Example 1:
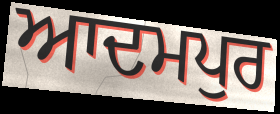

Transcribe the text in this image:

ਆਦਮਪੁਰ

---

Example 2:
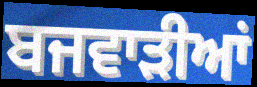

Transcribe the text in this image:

ਬਜਵਾੜੀਆਂ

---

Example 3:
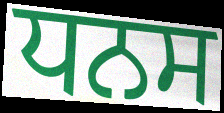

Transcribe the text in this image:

ਧਨਸ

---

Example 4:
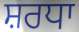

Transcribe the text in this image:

ਸ਼ਰਧਾ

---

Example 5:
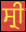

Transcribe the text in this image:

ਸ੍ਰੀ